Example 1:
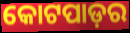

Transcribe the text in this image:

କୋଟପାଡ଼ର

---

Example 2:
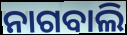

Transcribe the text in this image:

ନାଗବାଲି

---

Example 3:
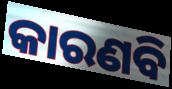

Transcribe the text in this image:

କାରଣବି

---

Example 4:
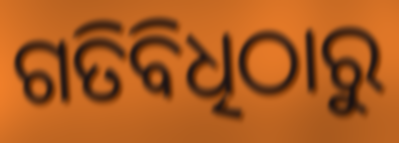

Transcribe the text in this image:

ଗତିବିଧିଠାରୁ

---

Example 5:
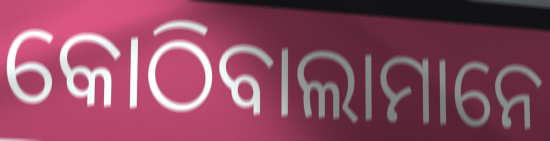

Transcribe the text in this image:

କୋଠିବାଲାମାନେ